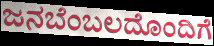
ಜನಬೆಂಬಲದೊಂದಿಗೆ